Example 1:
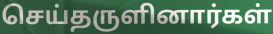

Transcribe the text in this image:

செய்தருளினார்கள்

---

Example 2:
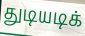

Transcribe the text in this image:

துடியடிக்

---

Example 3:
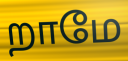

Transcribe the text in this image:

றாமே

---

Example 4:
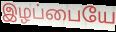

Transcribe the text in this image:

இழப்பையே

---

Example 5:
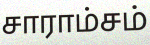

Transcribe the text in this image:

சாராம்சம்